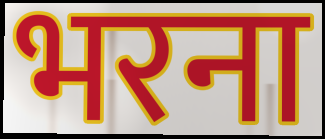
भरना